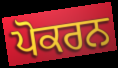
ਪੋਕਰਨ